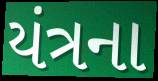
યંત્રના